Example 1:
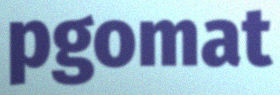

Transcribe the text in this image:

pgomat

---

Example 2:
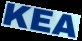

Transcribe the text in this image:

KEA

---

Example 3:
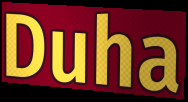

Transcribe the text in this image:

Duha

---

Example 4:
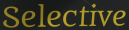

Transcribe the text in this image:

Selective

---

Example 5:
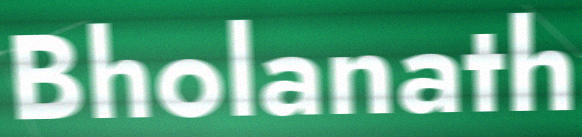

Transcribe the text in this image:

Bholanath